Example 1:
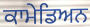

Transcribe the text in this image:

ਕਾਮੇਡਿਅਨ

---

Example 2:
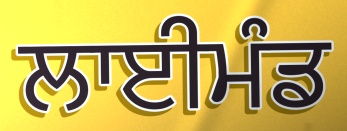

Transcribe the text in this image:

ਲਾਈਮੰਡ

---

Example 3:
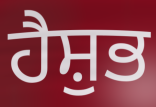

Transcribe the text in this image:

ਹੈਸ਼ੁਭ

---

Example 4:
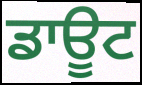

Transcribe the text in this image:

ਡਾਊਟ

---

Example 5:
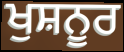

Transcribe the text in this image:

ਖੁਸ਼ਨੂਰ